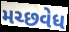
મચ્છવેધ